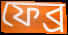
ফেব্র